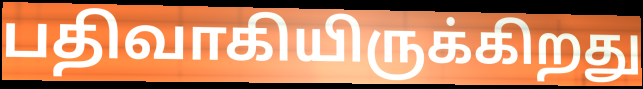
பதிவாகியிருக்கிறது